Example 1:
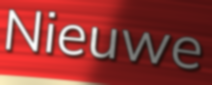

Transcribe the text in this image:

Nieuwe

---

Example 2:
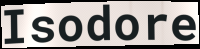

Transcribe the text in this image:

Isodore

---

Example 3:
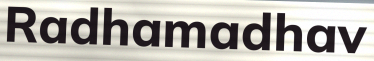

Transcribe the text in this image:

Radhamadhav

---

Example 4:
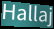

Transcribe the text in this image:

Hallaj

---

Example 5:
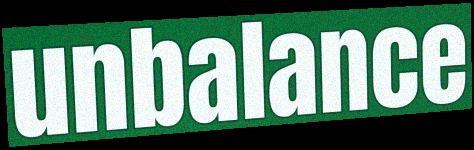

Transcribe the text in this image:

unbalance